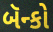
બૅન્કો